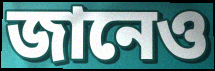
জানেও